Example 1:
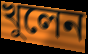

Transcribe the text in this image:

খুলেন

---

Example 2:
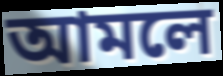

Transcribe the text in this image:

আমলে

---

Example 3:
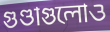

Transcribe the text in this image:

গুণ্ডাগুলোও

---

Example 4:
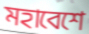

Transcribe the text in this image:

মহাবেশে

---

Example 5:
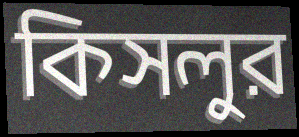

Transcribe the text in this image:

কিসলুর